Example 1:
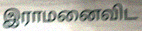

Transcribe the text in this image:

இராமனைவிட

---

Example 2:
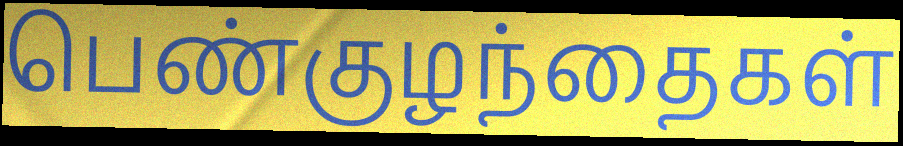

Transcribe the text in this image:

பெண்குழந்தைகள்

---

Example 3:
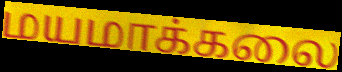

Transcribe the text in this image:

மயமாக்கலை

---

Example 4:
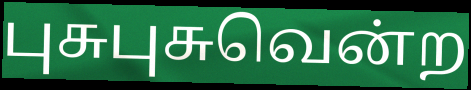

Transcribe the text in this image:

புசுபுசுவென்ற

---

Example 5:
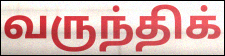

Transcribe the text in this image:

வருந்திக்